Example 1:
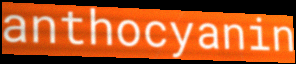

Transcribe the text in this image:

anthocyanin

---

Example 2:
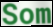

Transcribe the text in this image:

Som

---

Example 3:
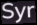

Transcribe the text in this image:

Syr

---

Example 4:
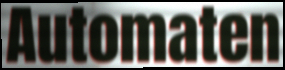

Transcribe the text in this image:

Automaten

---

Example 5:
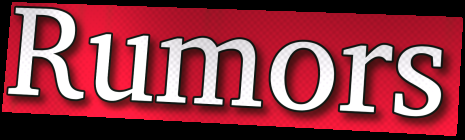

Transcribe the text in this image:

Rumors